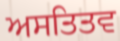
ਅਸਤਿਤਵ